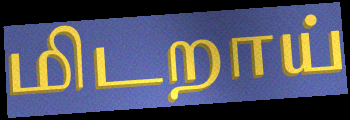
மிடறாய்